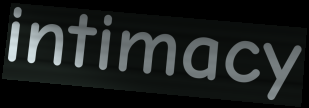
intimacy